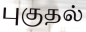
புகுதல்